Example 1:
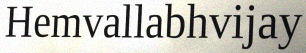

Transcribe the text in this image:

Hemvallabhvijay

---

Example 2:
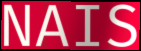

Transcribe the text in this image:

NAIS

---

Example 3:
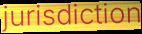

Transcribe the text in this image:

jurisdiction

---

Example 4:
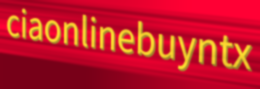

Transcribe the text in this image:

ciaonlinebuyntx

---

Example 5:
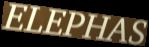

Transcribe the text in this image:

ELEPHAS